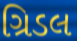
ગ્રિડલ